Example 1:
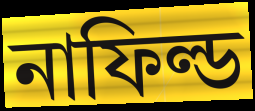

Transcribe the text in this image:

নাফিল্ড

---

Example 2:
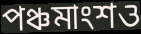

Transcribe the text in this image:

পঞ্চমাংশও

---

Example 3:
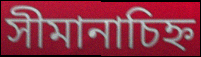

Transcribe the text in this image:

সীমানাচিহ্ন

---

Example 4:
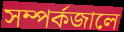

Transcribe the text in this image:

সম্পর্কজালে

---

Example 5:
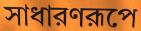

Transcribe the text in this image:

সাধারণরূপে